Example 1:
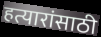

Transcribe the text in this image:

हत्यारांसाठी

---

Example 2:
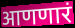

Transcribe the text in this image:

आणणारं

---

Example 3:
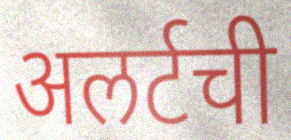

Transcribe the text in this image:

अलर्टची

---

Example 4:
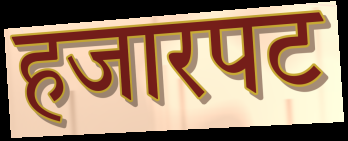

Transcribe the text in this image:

हजारपट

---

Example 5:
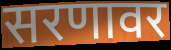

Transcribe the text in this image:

सरणावर